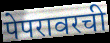
पेपरावरची